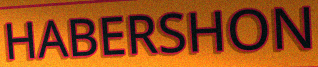
HABERSHON